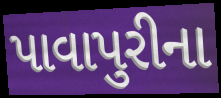
પાવાપુરીના